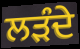
ਲੜੰਦੇ